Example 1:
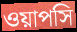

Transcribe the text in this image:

ওয়াপসি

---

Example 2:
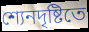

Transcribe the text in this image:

শ্যেনদৃষ্টিতে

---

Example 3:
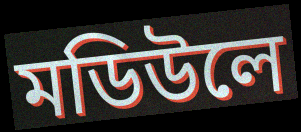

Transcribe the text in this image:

মডিউলে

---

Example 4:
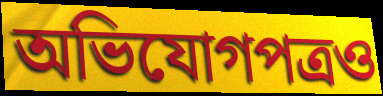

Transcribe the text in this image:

অভিযোগপত্রও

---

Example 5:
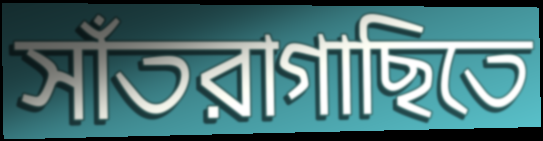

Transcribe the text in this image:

সাঁতরাগাছিতে